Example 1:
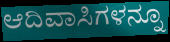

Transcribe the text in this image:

ಆದಿವಾಸಿಗಳನ್ನೂ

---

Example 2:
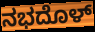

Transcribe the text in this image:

ನಭದೊಳ್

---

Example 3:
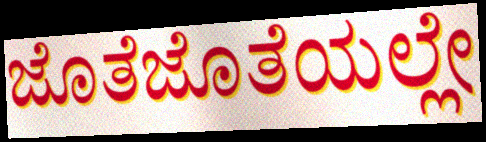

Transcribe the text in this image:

ಜೊತೆಜೊತೆಯಲ್ಲೇ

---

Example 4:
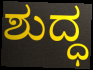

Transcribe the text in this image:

ಶುದ್ಧ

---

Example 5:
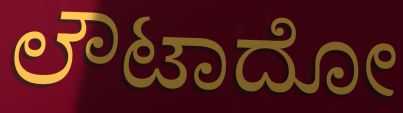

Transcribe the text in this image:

ಲೌಟಾದೋ